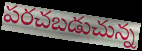
పరచబడుచున్న